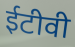
ईटीवी